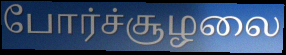
போர்ச்சூழலை